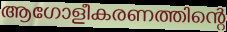
ആഗോളീകരണത്തിന്റെ